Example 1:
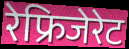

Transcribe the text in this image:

रेफ्रिजेरेट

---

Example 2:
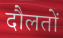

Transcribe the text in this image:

दौलतों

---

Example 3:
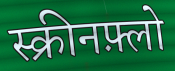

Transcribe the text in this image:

स्क्रीनफ़्लो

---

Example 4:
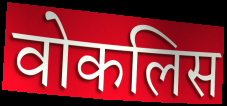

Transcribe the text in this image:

वोकलिस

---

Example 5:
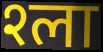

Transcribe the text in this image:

श्ला